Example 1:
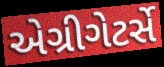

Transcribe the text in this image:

એગ્રીગેટર્સે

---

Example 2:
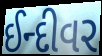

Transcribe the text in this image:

ઈન્દીવર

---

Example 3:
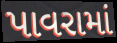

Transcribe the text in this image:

પાવરામાં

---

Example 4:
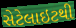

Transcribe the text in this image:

સેટેલાઇટથી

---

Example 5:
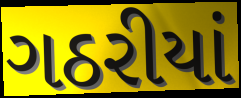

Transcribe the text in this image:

ગઠરીયાં